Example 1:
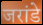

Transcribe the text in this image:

जरांडे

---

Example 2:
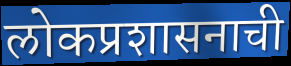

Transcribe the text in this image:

लोकप्रशासनाची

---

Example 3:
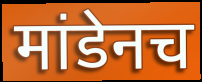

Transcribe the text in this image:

मांडेनच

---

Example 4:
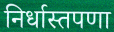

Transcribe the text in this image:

निर्धास्तपणा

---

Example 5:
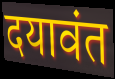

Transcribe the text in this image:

दयावंत